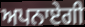
ਅਪਨਾਏਗੀ